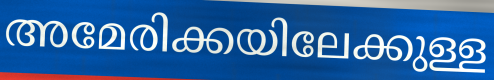
അമേരിക്കയിലേക്കുള്ള